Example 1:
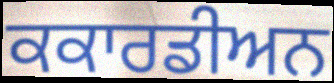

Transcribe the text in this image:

ਕਕਾਰਡੀਅਨ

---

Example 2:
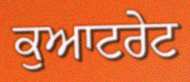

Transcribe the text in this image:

ਕੁਆਟਰੇਟ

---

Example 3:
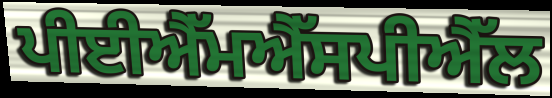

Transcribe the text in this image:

ਪੀਈਐੱਮਐੱਸਪੀਐੱਲ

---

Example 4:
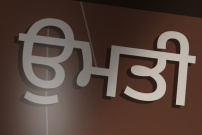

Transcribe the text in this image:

ਉਮਤੀ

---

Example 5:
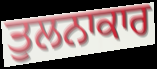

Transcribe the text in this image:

ਤੁਲਨਾਕਾਰ